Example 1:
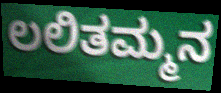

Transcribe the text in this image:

ಲಲಿತಮ್ಮನ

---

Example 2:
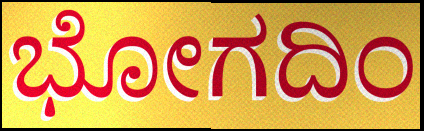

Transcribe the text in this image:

ಭೋಗದಿಂ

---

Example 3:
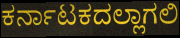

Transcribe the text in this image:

ಕರ್ನಾಟಕದಲ್ಲಾಗಲಿ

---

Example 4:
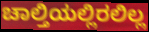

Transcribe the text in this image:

ಚಾಲ್ತಿಯಲ್ಲಿರಲಿಲ್ಲ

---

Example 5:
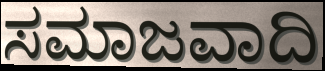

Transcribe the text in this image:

ಸಮಾಜವಾದಿ